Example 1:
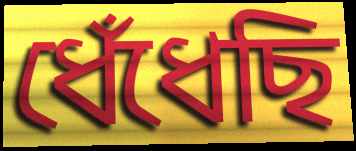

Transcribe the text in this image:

ধেঁধেছি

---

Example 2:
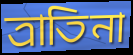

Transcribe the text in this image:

ত্রাতিনা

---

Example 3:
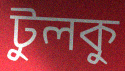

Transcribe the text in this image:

টুলকু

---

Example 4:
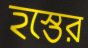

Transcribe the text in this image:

হস্তের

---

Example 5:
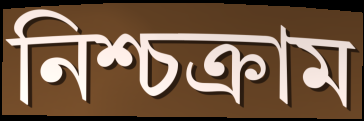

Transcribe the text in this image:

নিশ্চক্রাম